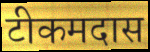
टीकमदास